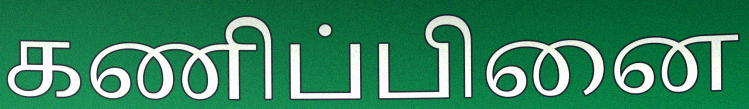
கணிப்பினை